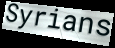
Syrians